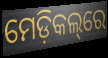
ମେଡ଼ିକଲ୍‌ରେ